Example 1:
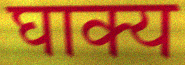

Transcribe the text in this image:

घाक्य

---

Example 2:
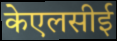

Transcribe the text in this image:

केएलसीई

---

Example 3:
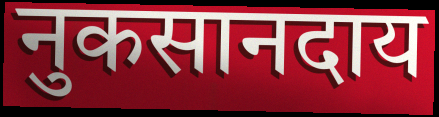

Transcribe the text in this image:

नुकसानदाय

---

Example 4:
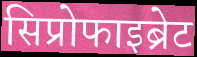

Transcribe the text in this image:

सिप्रोफाइब्रेट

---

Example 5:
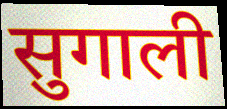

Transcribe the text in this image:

सुगाली